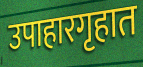
उपाहारगृहात